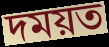
দময়ত